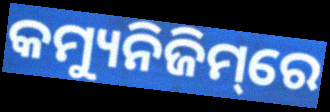
କମ୍ୟୁନିଜିମ୍‌ରେ